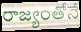
రాజ్యంతోనే